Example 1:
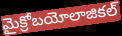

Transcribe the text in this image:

మైక్రోబయోలాజికల్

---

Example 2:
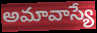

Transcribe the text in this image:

అమావాస్యే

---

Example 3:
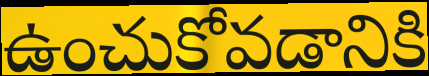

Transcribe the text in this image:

ఉంచుకోవడానికి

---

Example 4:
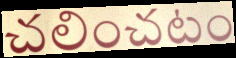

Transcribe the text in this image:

చలించటం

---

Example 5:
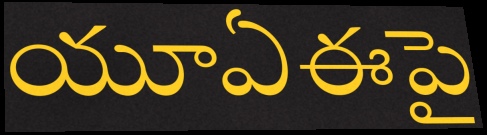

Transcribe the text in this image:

యూఏఈపై